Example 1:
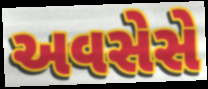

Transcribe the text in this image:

અવસેસે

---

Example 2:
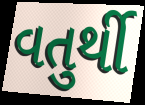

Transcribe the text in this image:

વતુર્થી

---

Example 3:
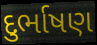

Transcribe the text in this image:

દુર્ભાષણ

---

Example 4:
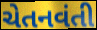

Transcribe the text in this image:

ચેતનવંતી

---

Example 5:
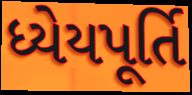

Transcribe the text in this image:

ધ્યેયપૂર્તિ